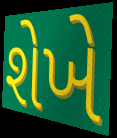
શેખે